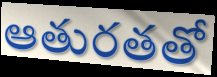
ఆతురతతో